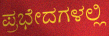
ಪ್ರಭೇದಗಳಲ್ಲಿ